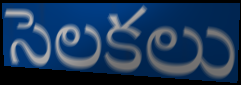
సెలకలు